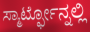
ಸ್ಮಾರ್ಟ್ಫೋನ್ನಲ್ಲಿ